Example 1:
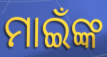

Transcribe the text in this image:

ମାଇଁଙ୍କ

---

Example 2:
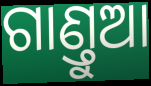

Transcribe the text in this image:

ଗାଣ୍ତୁଆ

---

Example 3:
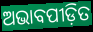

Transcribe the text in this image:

ଅଭାବପୀଡ଼ିତ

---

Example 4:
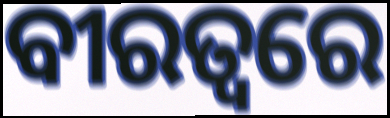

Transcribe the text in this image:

ବୀରତ୍ୱରେ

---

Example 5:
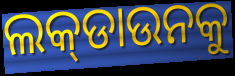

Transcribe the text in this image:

ଲକ୍‌ଡାଉନକୁ